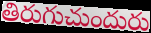
తిరుగుచుందురు